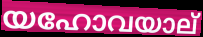
യഹോവയാല്